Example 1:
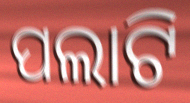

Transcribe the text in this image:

ପଲାଟି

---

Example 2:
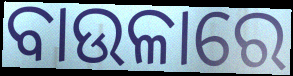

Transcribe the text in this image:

ବାଉଳାରେ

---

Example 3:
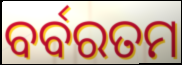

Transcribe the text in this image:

ବର୍ବରତମ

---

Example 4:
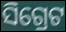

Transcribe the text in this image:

ସିଗ୍ରେଟ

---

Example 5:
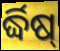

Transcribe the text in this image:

ର୍ଦ୍ଧିଷ୍